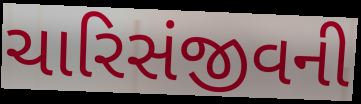
ચારિસંજીવની